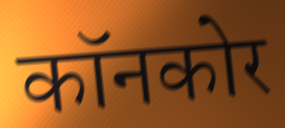
कॉनकोर